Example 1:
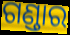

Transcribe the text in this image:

ଗଣ୍ଡାର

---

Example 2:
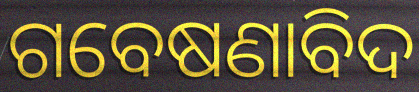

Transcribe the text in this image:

ଗବେଷଣାବିଦ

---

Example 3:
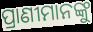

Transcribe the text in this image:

ପ୍ରାଣୀମାନଙ୍କୁ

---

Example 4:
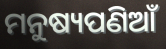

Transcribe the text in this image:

ମନୁଷ୍ୟପଣିଆଁ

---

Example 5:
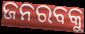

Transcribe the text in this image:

ଜନରବକୁ